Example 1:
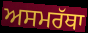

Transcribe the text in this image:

ਅਸਮਰੱਥਾ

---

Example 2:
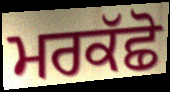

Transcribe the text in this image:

ਮਰਕੱਛੋ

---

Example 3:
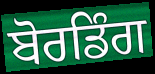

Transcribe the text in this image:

ਬੋਰਡਿੰਗ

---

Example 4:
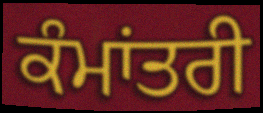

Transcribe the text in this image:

ਕੰਮਾਂਤਰੀ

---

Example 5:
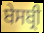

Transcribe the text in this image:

ਬੇਸਬ੍ਰੀ